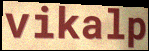
vikalp